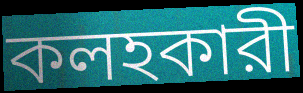
কলহকারী